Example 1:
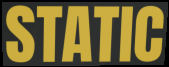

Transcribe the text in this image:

STATIC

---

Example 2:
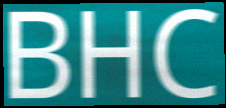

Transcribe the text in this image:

BHC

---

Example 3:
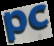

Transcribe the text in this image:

pc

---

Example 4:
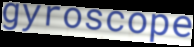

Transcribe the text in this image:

gyroscope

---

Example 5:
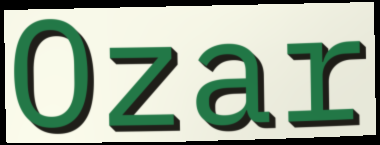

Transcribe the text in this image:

Ozar